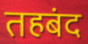
तहबंद